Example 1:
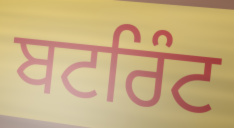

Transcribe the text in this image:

ਬਟਰਿੰਟ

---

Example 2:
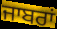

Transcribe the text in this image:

ਜਾਬਰਾਂ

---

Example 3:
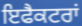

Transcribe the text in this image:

ਇਫੈਕਟਰਾਂ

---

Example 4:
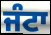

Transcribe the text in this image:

ਜੰਟਾ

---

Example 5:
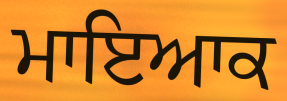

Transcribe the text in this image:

ਮਾਇਆਕ